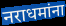
नराधमांना